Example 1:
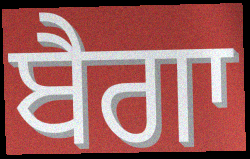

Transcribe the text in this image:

ਬੈਗਾ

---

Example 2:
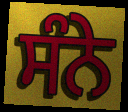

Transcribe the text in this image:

ਸੰਨੇ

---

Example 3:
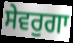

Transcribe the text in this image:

ਸੇਵਰੁਗਾ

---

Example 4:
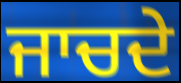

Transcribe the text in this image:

ਜਾਚਦੇ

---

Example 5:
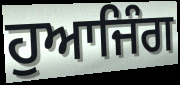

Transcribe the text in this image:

ਹੁਆਜਿੰਗ